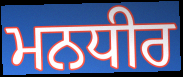
ਮਨਧੀਰ